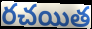
రచయిత